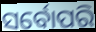
ସର୍ବୋପରି